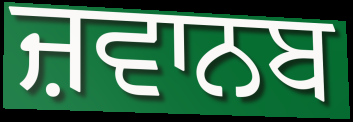
ਜ਼ਵਾਨਬ